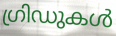
ഗ്രിഡുകൾ